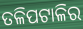
ତଳିପଟାଳିର